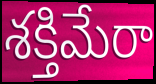
శక్తిమేరా